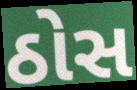
ઠોસ